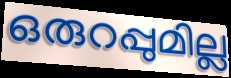
ഒരുറപ്പുമില്ല